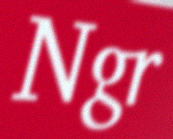
Ngr